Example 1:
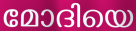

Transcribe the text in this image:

മോദിയെ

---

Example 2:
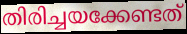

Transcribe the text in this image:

തിരിച്ചയക്കേണ്ടത്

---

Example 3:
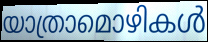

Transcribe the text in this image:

യാത്രാമൊഴികൾ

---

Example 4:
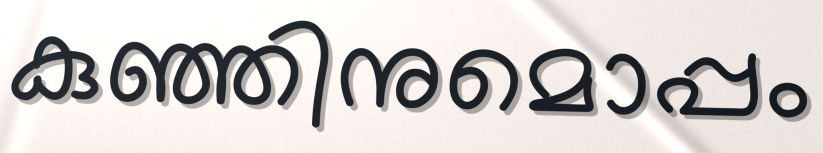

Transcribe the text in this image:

കുഞ്ഞിനുമൊപ്പം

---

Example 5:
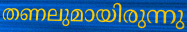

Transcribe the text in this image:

തണലുമായിരുന്നു